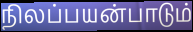
நிலப்பயன்பாடும்